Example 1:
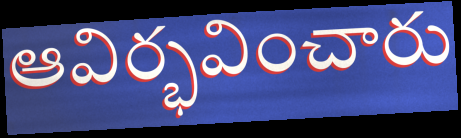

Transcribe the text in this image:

ఆవిర్భవించారు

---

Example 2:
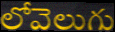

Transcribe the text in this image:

లోవెలుగు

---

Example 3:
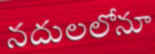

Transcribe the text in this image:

నదులలోనూ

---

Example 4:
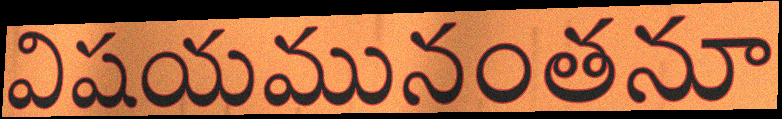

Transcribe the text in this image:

విషయమునంతనూ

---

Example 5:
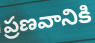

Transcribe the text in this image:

ప్రణవానికి